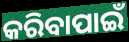
କରିବାପାଇଁ